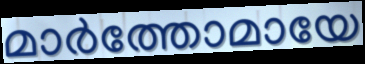
മാർത്തോമായേ